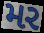
મર